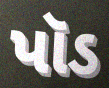
પૉડ